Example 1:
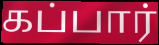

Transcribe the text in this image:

கப்பார்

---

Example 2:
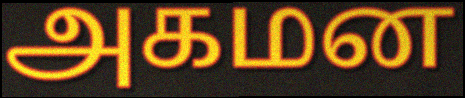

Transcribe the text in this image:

அகமன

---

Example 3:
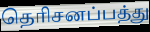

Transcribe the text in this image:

தெரிசனப்பத்து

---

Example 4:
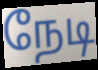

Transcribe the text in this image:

நேடி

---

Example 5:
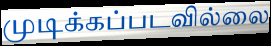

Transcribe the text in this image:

முடிக்கப்படவில்லை